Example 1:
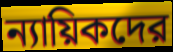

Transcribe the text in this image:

ন্যায়িকদের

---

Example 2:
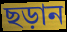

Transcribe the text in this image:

ছড়ান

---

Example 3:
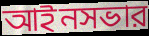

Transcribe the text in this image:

আইনসভার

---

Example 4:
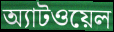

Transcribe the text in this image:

অ্যাটওয়েল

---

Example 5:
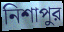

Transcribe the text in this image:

নিশাপুর